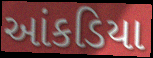
આંકડિયા